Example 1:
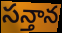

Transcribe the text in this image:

సన్తాన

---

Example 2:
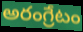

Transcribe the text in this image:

అరంగ్రేటం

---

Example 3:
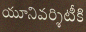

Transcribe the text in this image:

యూనివర్శిటీకి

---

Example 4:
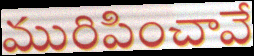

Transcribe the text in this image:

మురిపించావే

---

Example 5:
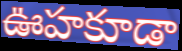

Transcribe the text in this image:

ఊహకూడా